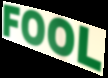
FOOL